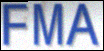
FMA